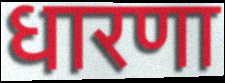
धारणा